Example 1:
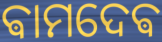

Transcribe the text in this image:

ଵାମଦେଵ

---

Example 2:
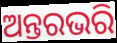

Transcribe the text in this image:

ଅନ୍ତରଭରି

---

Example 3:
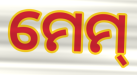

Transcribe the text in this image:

ମେମ୍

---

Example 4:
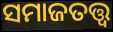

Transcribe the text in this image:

ସମାଜତତ୍ତ୍ବ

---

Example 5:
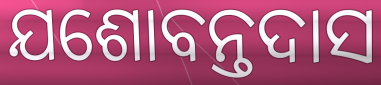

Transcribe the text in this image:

ଯଶୋବନ୍ତଦାସ